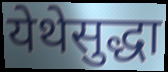
येथेसुद्धा